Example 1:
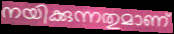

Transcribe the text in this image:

നയിക്കുന്നതുമാണ്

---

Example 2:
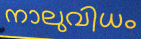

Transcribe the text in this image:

നാലുവിധം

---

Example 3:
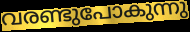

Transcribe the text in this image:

വരണ്ടുപോകുന്നു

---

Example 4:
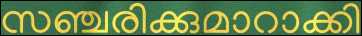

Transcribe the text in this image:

സഞ്ചരിക്കുമാറാക്കി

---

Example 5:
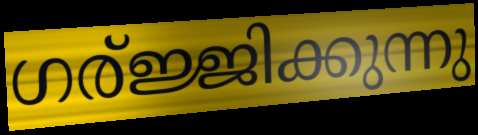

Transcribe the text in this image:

ഗര്ജ്ജിക്കുന്നു